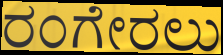
ರಂಗೇರಲು